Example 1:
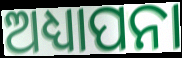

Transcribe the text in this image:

ଅଧ୍ଯାପନା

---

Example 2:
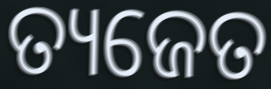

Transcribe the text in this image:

ତ୍ୟଜେତ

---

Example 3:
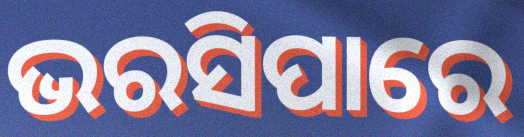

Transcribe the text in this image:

ଭରସିପାରେ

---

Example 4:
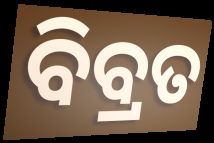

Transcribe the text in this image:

ବିବ୍ରତ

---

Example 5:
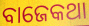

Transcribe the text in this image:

ବାଜେକଥା